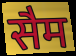
सैम